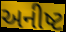
અનીષ્ટ